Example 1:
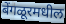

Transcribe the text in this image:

बेंगळूरमधील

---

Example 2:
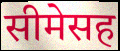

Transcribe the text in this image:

सीमेसह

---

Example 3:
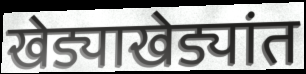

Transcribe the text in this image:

खेड्याखेड्यांत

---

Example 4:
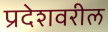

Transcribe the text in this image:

प्रदेशवरील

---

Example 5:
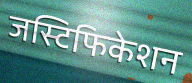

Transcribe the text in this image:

जस्टिफिकेशन